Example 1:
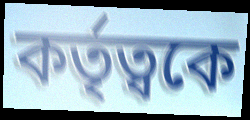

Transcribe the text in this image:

কর্তৃত্বকে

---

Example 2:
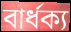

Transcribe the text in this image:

বার্ধক্য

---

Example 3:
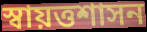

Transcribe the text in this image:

স্বায়ত্তশাসন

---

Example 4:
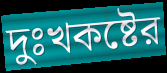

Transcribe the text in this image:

দুঃখকষ্টের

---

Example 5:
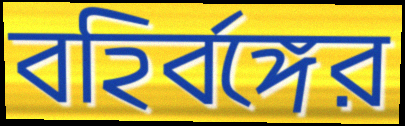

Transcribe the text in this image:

বহির্বঙ্গের